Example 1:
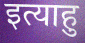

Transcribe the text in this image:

इत्याहु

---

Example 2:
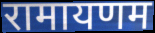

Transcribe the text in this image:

रामायणम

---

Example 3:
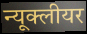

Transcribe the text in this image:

न्यूक्लीयर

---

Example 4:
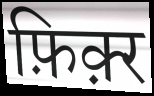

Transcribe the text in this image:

फ़िक़्र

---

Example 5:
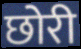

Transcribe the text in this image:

छोरी